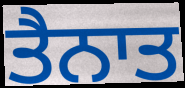
ਤੈਨਾਤ